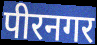
पीरनगर